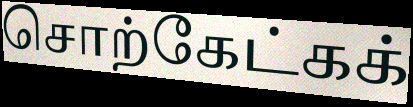
சொற்கேட்கக்